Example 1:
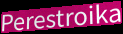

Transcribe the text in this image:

Perestroika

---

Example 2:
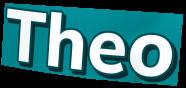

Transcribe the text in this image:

Theo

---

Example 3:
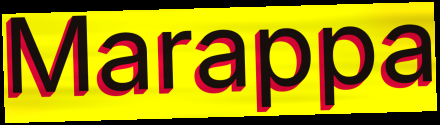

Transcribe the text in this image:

Marappa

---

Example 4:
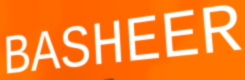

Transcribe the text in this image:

BASHEER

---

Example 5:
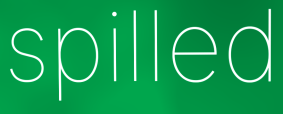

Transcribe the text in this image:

spilled